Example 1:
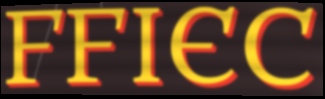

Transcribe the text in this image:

FFIEC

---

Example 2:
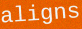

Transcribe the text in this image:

aligns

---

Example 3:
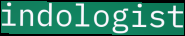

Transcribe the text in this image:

indologist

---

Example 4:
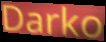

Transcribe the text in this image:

Darko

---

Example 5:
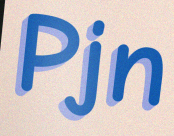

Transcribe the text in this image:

Pjn